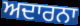
ਅਦਾਰਨਾ